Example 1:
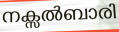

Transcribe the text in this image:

നക്സൽബാരി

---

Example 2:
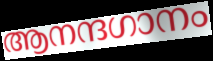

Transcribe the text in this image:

ആനന്ദഗാനം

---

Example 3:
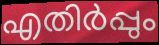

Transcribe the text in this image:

എതിർപ്പും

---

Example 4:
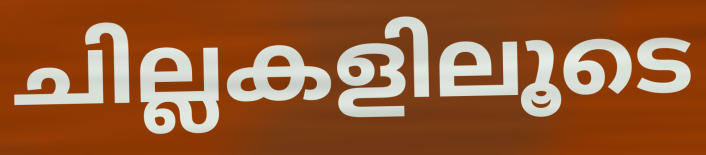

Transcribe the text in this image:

ചില്ലകളിലൂടെ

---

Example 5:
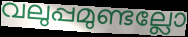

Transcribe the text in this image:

വലുപ്പമുണ്ടല്ലോ